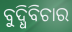
ବୁଦ୍ଧିବିଚାର